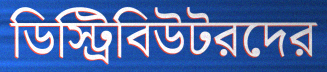
ডিস্ট্রিবিউটরদের